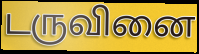
டருவினை